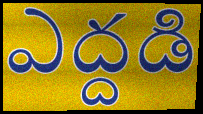
ఎద్దడి